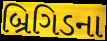
બ્રિગિડના